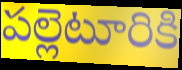
పల్లెటూరికి